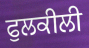
ਫੁਲਕੀਲੀ